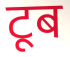
टूब